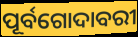
ପୂର୍ବଗୋଦାବରୀ